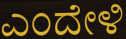
ಎಂದೇಳಿ